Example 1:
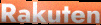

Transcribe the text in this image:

Rakuten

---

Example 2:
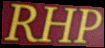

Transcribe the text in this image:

RHP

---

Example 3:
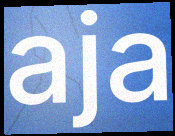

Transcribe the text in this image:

aja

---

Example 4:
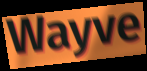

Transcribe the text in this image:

Wayve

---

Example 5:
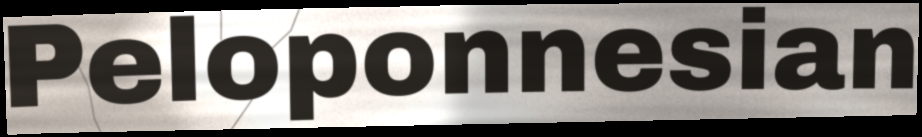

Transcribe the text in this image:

Peloponnesian